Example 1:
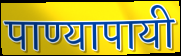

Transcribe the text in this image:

पाण्यापायी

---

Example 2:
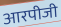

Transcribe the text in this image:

आरपीजी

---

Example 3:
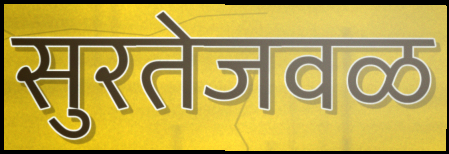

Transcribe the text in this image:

सुरतेजवळ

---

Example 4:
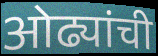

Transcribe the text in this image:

ओढ्यांची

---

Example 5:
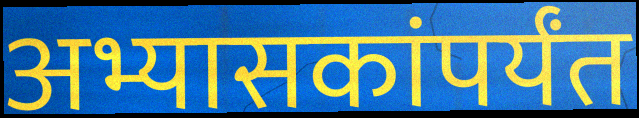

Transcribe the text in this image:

अभ्यासकांपर्यंत